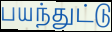
பயந்துட்டு